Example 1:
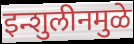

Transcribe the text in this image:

इन्शुलीनमुळे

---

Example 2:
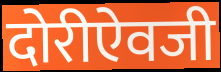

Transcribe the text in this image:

दोरीऐवजी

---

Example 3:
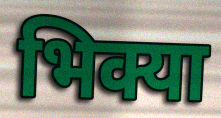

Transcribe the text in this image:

भिक्या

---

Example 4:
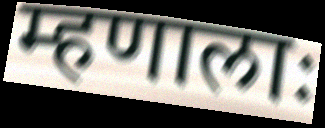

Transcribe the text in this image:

म्हणालाः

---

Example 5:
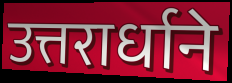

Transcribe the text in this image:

उत्तरार्धाने